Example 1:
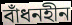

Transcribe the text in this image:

বাঁধনহীন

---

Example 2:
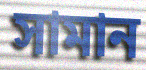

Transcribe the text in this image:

সামান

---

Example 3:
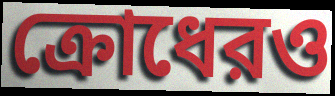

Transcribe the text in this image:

ক্রোধেরও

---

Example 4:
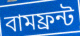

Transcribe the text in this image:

বামফ্রন্ট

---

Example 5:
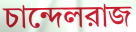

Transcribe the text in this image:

চান্দেলরাজ